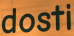
dosti